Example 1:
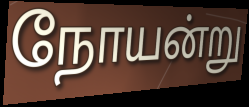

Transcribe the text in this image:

நோயன்று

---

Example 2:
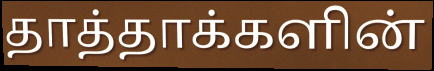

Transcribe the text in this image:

தாத்தாக்களின்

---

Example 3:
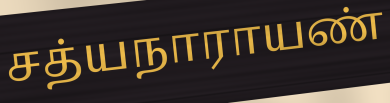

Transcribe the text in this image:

சத்யநாராயண்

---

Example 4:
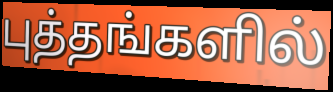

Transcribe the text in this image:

புத்தங்களில்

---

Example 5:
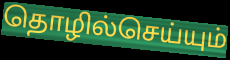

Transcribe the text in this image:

தொழில்செய்யும்